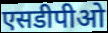
एसडीपीओ